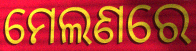
ମେଲଣରେ